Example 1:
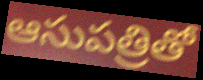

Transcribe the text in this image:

ఆసుపత్రితో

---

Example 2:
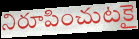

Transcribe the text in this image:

నిరూపించుటకై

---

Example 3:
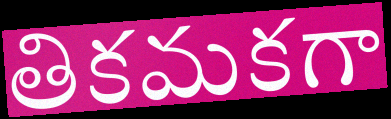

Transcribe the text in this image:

తికమకగా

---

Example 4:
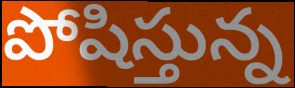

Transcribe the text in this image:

పోషిస్తున్న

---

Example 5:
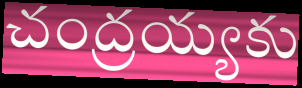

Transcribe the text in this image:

చంద్రయ్యకు